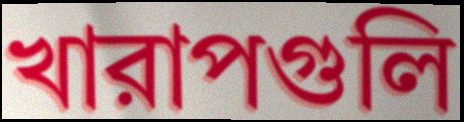
খারাপগুলি